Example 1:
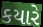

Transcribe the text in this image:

કયારે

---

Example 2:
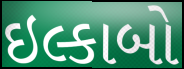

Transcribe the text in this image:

ઇલ્કાબો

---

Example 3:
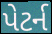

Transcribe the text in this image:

પેટર્ન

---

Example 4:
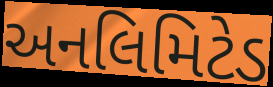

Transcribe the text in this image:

અનલિમિટેડ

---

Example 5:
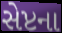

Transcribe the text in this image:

સેપ્ટના